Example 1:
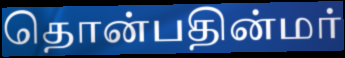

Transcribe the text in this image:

தொன்பதின்மர்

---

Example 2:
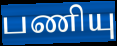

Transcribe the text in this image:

பணியு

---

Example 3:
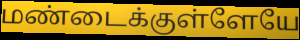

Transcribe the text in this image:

மண்டைக்குள்ளேயே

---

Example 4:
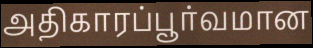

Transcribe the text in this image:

அதிகாரப்பூர்வமான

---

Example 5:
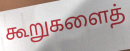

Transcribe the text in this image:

கூறுகளைத்